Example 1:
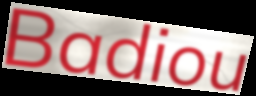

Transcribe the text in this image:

Badiou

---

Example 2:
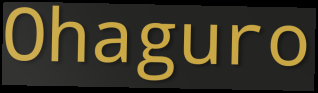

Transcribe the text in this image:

Ohaguro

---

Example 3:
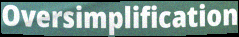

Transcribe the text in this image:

Oversimplification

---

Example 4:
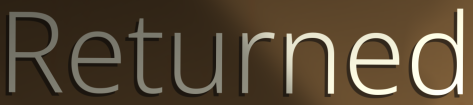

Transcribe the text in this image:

Returned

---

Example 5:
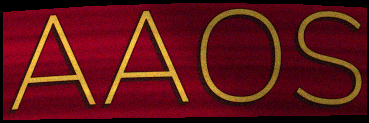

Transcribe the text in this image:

AAOS